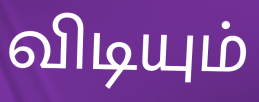
விடியும்